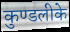
कुण्डलीके